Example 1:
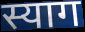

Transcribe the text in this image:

स्याग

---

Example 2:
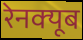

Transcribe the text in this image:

रेनक्यूब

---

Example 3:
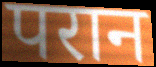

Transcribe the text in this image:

परान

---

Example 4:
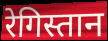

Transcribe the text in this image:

रेगिस्तान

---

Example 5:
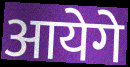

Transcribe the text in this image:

आयेगे